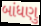
બાંધણુ